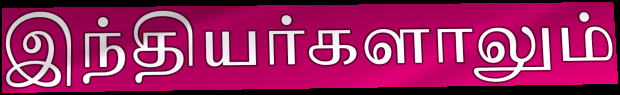
இந்தியர்களாலும்